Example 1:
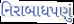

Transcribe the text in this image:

નિરાબાધપણું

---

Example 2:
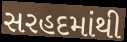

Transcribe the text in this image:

સરહદમાંથી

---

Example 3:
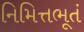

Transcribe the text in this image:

નિમિત્તભૂતં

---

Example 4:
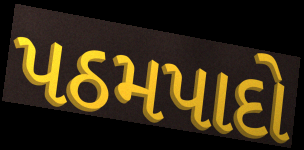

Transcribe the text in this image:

પઠમપાદો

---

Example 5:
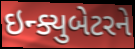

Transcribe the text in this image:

ઇન્ક્યુબેટરને